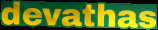
devathas